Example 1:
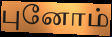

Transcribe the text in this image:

புனோம்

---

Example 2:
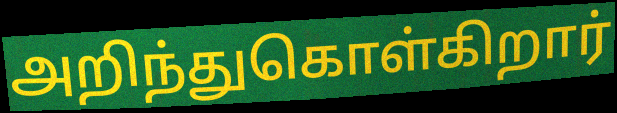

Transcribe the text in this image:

அறிந்துகொள்கிறார்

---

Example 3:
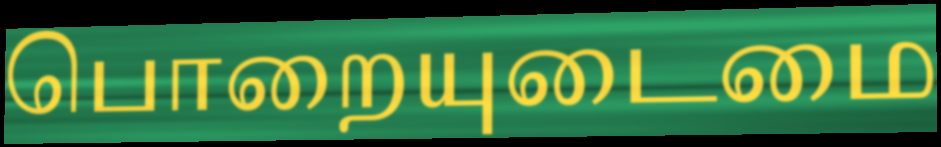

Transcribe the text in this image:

பொறையுடைமை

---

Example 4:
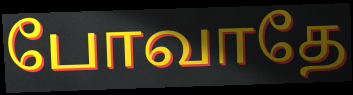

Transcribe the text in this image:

போவாதே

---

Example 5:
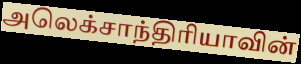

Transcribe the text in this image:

அலெக்சாந்திரியாவின்